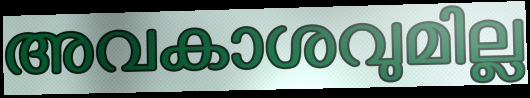
അവകാശവുമില്ല